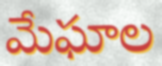
మేఘాల